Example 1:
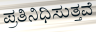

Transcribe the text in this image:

ಪ್ರತಿನಿಧಿಸುತ್ತವೆ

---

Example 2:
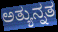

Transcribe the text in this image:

ಅತ್ಯುನ್ನತ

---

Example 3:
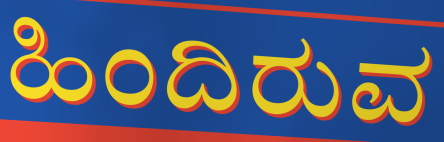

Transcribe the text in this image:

ಹಿಂದಿರುವ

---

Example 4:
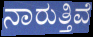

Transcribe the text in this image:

ನಾರುತ್ತಿವೆ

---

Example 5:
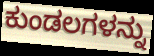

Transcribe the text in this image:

ಕುಂಡಲಗಳನ್ನು